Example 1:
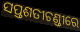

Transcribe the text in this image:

ସପ୍ତଶତୀଚଣ୍ଡୀରେ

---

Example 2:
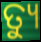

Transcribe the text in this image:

ତ୍ୟୁ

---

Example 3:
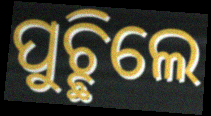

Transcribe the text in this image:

ପୁଚ୍ଛିଲେ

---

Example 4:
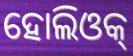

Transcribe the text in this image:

ହୋଲିଓକ୍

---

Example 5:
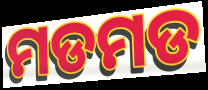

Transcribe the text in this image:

ମଡମଡ